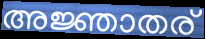
അജ്ഞാതര്